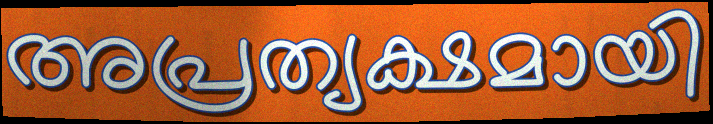
അപ്രത്യക്ഷമായി